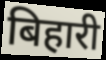
बिहारी